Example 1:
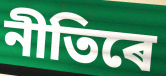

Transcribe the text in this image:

নীতিৰে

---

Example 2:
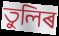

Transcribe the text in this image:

তুলিৰ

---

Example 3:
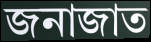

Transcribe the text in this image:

জনাজাত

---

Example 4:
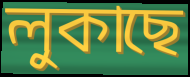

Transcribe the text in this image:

লুকাছে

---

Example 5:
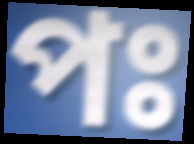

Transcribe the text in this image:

পঃ